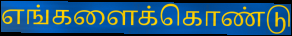
எங்களைக்கொண்டு